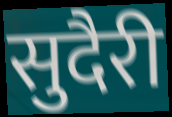
सुदैरी